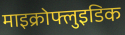
माइक्रोफ्लुइडिक